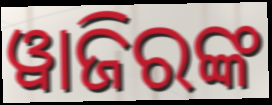
ୱାଜିରଙ୍କ